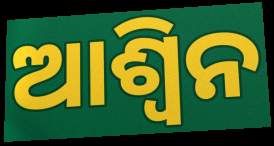
ଆଶ୍ୱିନ